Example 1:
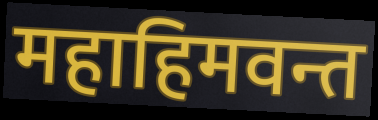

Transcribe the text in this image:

महाहिमवन्त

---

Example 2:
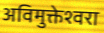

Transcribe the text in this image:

अविमुक्तेश्वरा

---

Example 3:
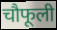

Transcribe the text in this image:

चौफूली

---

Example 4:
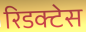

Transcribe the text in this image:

रिडक्टेस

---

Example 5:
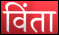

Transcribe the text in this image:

विंता